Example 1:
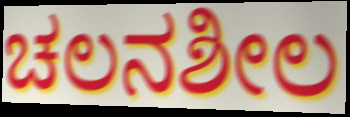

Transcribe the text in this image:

ಚಲನಶೀಲ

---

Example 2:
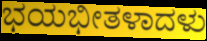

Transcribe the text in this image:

ಭಯಭೀತಳಾದಳು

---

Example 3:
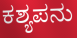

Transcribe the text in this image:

ಕಶ್ಯಪನು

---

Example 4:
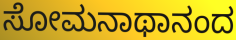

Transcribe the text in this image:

ಸೋಮನಾಥಾನಂದ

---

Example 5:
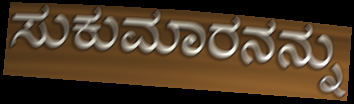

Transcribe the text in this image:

ಸುಕುಮಾರನನ್ನು